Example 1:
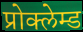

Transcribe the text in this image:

प्रोक्लेम्ड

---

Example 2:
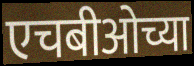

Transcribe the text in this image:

एचबीओच्या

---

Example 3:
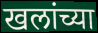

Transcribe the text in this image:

खलांच्या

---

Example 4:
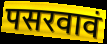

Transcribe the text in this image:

पसरवावं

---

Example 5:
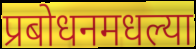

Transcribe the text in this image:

प्रबोधनमधल्या